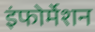
इंफोर्मेशन